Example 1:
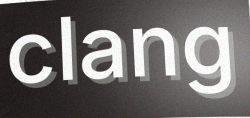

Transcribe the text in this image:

clang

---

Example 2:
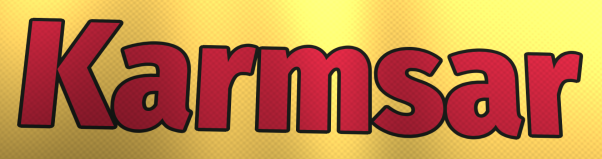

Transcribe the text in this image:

Karmsar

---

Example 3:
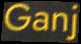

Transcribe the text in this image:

Ganj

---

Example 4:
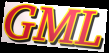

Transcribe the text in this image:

GML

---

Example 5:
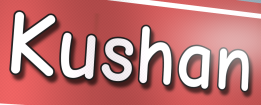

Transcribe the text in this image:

Kushan